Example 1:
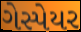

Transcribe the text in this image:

ગેસ્પેયર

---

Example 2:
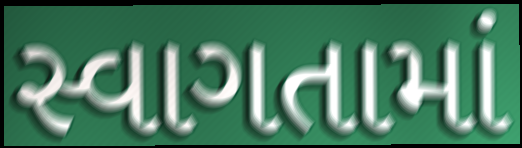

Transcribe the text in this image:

સ્વાગતામાં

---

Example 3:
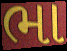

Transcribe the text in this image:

ભા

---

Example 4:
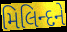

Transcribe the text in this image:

મિલિન્દને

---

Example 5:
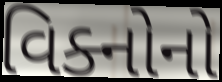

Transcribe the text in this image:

વિક્નોનો